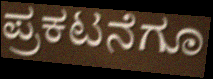
ಪ್ರಕಟನೆಗೂ